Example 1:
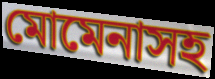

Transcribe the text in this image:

মোমেনাসহ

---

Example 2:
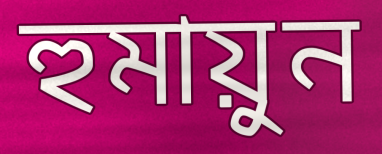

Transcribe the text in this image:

হুমায়ুন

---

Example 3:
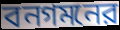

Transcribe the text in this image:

বনগমনের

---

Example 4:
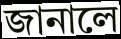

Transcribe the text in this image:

জানালে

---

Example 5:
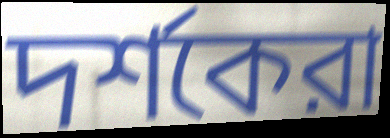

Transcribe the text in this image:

দর্শকেরা